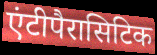
एंटीपैरासिटिक